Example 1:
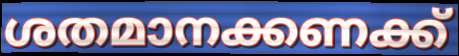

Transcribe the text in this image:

ശതമാനക്കണക്ക്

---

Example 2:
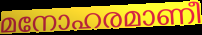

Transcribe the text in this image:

മനോഹരമാണീ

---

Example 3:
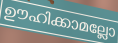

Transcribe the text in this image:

ഊഹിക്കാമല്ലോ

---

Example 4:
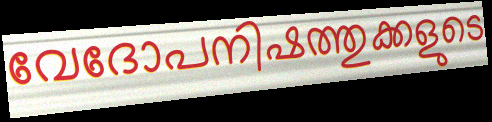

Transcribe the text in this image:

വേദോപനിഷത്തുക്കളുടെ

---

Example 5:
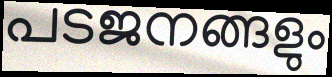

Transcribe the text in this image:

പടജനങ്ങളും